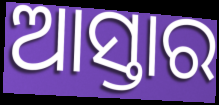
ଆସ୍ତାର